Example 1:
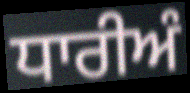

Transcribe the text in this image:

ਧਾਰੀਅੰ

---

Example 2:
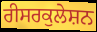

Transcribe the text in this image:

ਰੀਸਰਕੁਲੇਸ਼ਨ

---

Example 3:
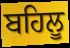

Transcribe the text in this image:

ਬਹਿਲੂ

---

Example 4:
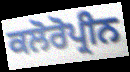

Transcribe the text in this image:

ਕਲੋਰੋਪ੍ਰੀਨ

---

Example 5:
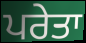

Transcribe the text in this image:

ਪਰੇਤਾ